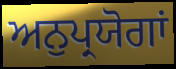
ਅਨੁਪ੍ਰਯੋਗਾਂ